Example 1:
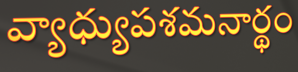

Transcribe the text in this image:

వ్యాధ్యుపశమనార్థం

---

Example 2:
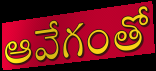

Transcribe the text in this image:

ఆవేగంతో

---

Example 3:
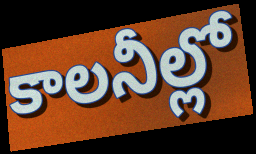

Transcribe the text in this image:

కాలనీల్లో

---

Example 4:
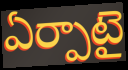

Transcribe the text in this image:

ఏర్పాటై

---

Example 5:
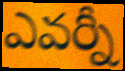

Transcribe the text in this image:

ఎవర్నీ